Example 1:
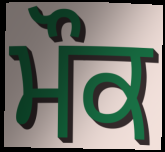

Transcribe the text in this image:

ਮੌਕ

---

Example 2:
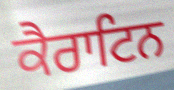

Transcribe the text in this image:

ਕੈਰਾਟਿਨ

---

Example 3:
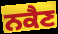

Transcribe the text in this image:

ਨਕੈਣ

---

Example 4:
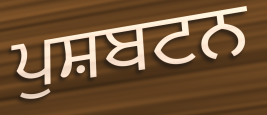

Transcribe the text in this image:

ਪੁਸ਼ਬਟਨ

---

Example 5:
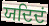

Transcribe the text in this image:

ਯਦਿਦਂ